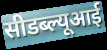
सीडब्ल्यूआई